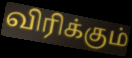
விரிக்கும்